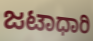
ಜಟಾಧಾರಿ